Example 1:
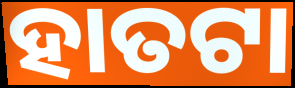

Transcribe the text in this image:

ହାତଟା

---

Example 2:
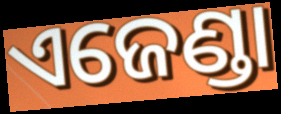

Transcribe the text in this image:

ଏଜେଣ୍ଡା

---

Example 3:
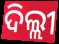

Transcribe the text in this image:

ଦିଲ୍ଲୀ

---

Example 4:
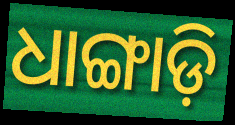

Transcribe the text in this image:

ଧାଙ୍ଗାଡ଼ି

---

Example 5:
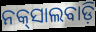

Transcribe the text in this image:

ନକ୍‌ସାଲବାଡ଼ି